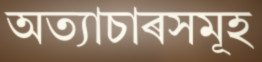
অত্যাচাৰসমূহ